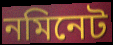
নমিনেট